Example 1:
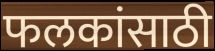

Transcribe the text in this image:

फलकांसाठी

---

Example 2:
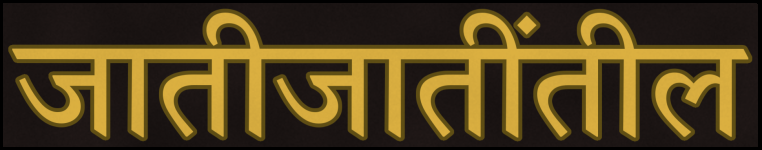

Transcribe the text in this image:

जातीजातींतील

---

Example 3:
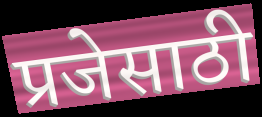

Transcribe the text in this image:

प्रजेसाठी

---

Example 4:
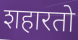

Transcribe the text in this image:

शहारतो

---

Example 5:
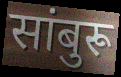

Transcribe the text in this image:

सांबुरू